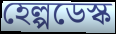
হেল্পডেস্ক